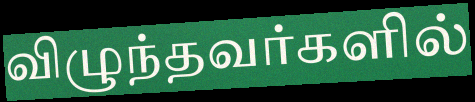
விழுந்தவர்களில்